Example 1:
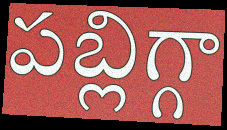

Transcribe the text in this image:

పబ్లిగ్గా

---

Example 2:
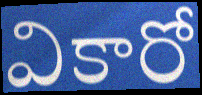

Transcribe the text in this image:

వికారో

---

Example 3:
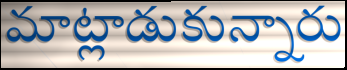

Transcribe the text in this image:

మాట్లాడుకున్నారు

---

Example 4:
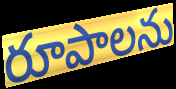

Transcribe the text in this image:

రూపాలను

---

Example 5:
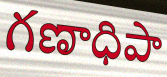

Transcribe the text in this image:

గణాధిపా